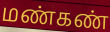
மண்கண்